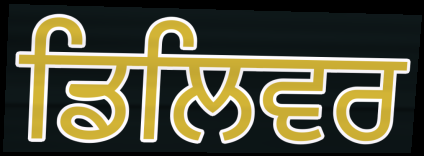
ਡਿਲਿਵਰ